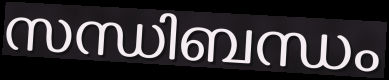
സന്ധിബന്ധം